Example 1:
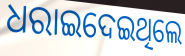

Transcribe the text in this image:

ଧରାଇଦେଇଥିଲେ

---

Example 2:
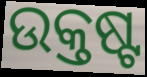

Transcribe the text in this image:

ଉକ୍ତଷ୍ଟ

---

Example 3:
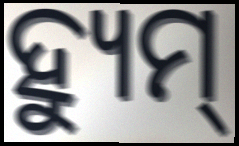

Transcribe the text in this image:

ହ୍ୟୁମ୍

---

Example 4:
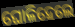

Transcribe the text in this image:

ଘୋଳିହେଲେ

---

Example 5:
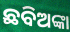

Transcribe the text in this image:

ଛବିଅଙ୍କା